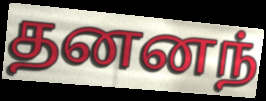
தனனந்